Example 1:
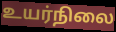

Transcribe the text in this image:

உயர்நிலை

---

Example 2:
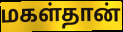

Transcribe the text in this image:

மகள்தான்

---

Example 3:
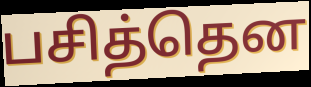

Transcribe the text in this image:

பசித்தென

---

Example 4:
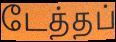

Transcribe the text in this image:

டேத்தப்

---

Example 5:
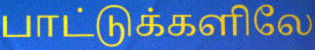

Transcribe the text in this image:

பாட்டுக்களிலே